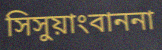
সিসুয়াংবাননা